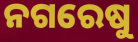
ନଗରେଷୁ